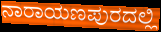
ನಾರಾಯಣಪುರದಲ್ಲಿ